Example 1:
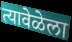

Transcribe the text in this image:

त्यावेळेला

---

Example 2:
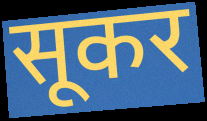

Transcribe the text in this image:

सूकर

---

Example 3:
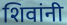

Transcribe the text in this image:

शिवांनी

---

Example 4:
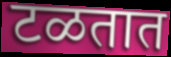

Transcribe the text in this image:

टळतात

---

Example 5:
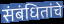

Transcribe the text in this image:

संबंधितांचे